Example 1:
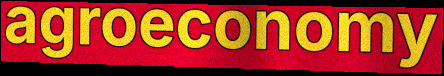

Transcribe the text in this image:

agroeconomy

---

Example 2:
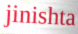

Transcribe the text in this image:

jinishta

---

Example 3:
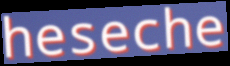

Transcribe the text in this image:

heseche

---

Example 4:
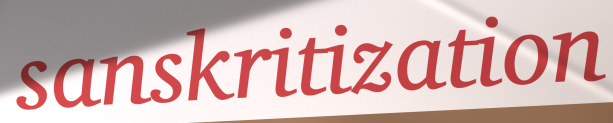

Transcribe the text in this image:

sanskritization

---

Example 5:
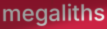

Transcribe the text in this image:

megaliths